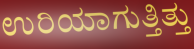
ಉರಿಯಾಗುತ್ತಿತ್ತು